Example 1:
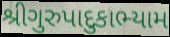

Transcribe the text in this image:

શ્રીગુરુપાદુકાભ્યામ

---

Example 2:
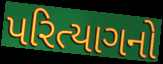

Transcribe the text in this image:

પરિત્યાગનો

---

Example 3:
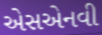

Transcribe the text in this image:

એસએનવી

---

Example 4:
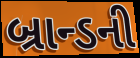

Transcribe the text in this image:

બ્રાન્ડની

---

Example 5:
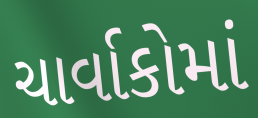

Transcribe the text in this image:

ચાર્વાકોમાં